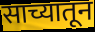
साच्यातून